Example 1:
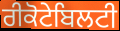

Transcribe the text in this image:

ਰੀਕੋਟੇਬਿਲਟੀ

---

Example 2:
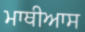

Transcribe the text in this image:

ਮਾਥੀਆਸ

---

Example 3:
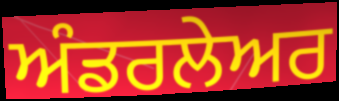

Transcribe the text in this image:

ਅੰਡਰਲੇਅਰ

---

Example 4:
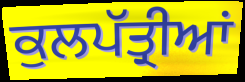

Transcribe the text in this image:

ਕੁਲਪੱਤ੍ਰੀਆਂ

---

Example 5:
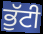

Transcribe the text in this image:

ਭੁੱਟੀ